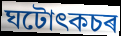
ঘটোৎকচৰ